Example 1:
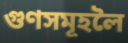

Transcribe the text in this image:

গুণসমূহলৈ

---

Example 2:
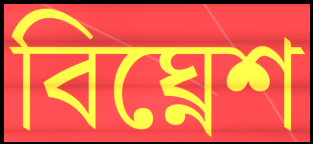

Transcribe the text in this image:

বিঘ্নেশ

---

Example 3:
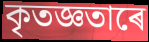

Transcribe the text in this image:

কৃতজ্ঞতাৰে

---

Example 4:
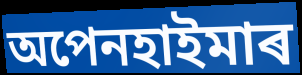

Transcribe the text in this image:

অপেনহাইমাৰ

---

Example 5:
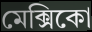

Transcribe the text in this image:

মেক্সিকো